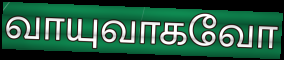
வாயுவாகவோ